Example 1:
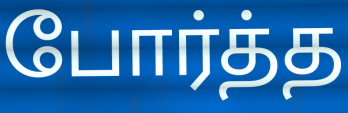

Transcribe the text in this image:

போர்த்த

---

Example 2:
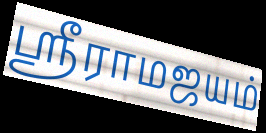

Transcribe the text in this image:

ஸ்ரீராமஜயம்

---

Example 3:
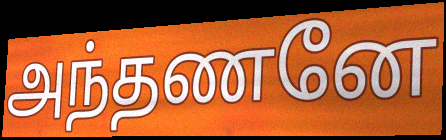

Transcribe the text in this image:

அந்தணனே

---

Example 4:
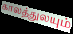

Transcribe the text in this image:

காலத்துலயும்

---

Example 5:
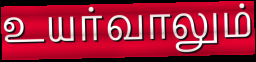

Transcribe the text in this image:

உயர்வாலும்